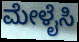
ಮೇಳೈಸಿ